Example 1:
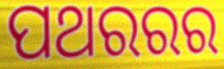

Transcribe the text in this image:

ପଥରରର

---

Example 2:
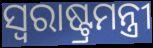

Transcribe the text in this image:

ସ୍ବରାଷ୍ଟ୍ରମନ୍ତ୍ରୀ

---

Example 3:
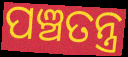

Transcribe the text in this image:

ପଞ୍ଚତନ୍ତ୍ର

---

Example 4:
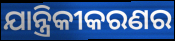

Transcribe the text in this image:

ଯାନ୍ତ୍ରିକୀକରଣର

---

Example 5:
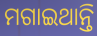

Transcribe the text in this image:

ମଗାଇଥାନ୍ତି